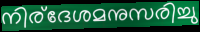
നിര്ദേശമനുസരിച്ചു